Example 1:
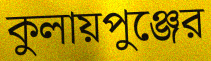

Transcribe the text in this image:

কুলায়পুঞ্জের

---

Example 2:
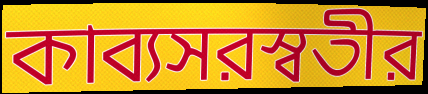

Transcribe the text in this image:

কাব্যসরস্বতীর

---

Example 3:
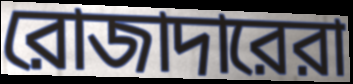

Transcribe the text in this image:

রোজাদারেরা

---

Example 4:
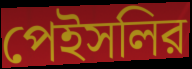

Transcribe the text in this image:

পেইসলির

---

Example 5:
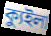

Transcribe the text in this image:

ক্যুইলা